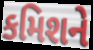
કમિશને